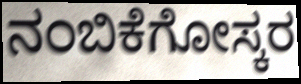
ನಂಬಿಕೆಗೋಸ್ಕರ